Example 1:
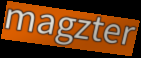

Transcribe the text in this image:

magzter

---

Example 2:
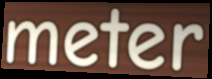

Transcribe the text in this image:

meter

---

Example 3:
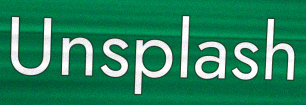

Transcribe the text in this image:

Unsplash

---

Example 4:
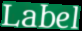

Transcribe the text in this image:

Label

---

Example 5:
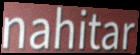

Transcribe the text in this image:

nahitar